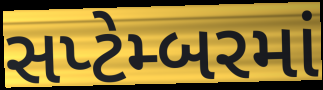
સપ્ટેમ્બરમાં